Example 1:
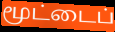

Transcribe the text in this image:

மூட்டைப்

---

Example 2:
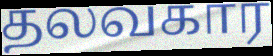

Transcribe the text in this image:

தலவகார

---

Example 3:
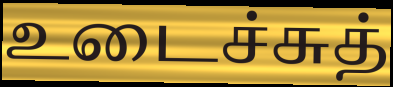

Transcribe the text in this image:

உடைச்சுத்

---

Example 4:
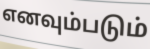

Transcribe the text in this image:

எனவும்படும்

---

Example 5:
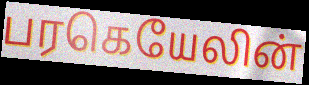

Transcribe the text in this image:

பரகெயேலின்